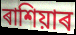
ৰাশিয়াৰ